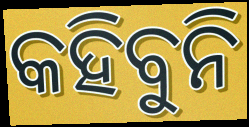
କହିବୁନି